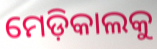
ମେଡ଼ିକାଲକୁ